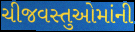
ચીજવસ્તુઓમાંની